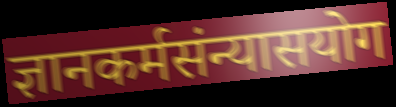
ज्ञानकर्मसंन्यासयोग